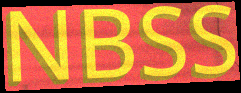
NBSS